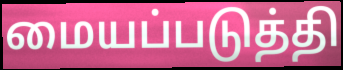
மையப்படுத்தி